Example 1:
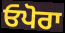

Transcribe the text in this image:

ਓਪੋਰਾ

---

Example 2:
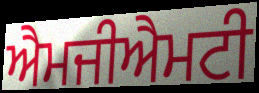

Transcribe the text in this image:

ਐਮਜੀਐਮਟੀ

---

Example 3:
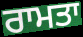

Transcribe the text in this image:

ਰਾਮਤਾ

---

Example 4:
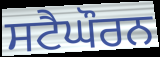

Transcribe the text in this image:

ਸਟੈਘੌਰਨ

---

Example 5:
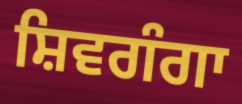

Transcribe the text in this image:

ਸ਼ਿਵਗੰਗਾ